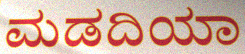
ಮಡದಿಯಾ